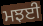
ਮਝਈ